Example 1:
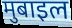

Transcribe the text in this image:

मुबाइल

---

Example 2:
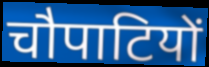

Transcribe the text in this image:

चौपाटियों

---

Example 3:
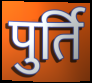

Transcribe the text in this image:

पुर्ति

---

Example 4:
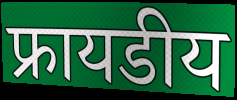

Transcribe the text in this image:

फ्रायडीय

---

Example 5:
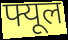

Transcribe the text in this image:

फ्यूल